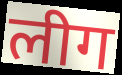
लीग